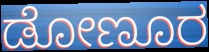
ಡೋಣೂರ